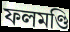
ফলমণ্ডি